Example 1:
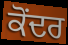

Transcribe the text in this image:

ਕੋਂਦਰ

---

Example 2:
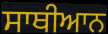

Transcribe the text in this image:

ਸਾਥੀਆਨ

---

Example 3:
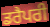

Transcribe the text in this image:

ਡਰੈਪਰੀ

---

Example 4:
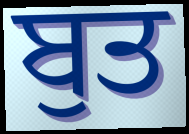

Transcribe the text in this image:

ਬੁਤ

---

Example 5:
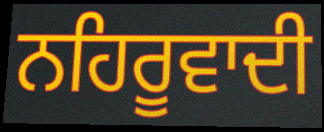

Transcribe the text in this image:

ਨਹਿਰੂਵਾਦੀ